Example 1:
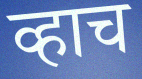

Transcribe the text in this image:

व्हाच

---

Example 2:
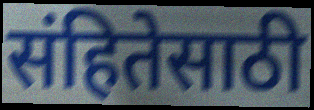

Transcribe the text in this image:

संहितेसाठी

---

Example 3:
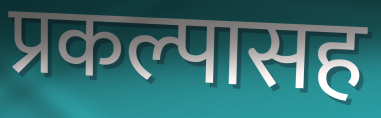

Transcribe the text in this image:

प्रकल्पासह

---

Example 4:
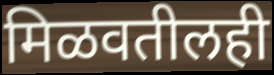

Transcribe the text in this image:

मिळवतीलही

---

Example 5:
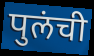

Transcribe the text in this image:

पुलंची